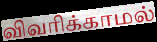
விவரிக்காமல்